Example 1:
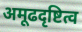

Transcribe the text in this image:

अमूढदृष्टित्व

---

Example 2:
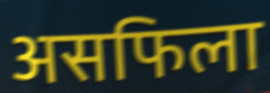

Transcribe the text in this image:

असफिला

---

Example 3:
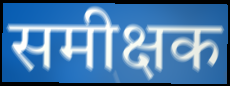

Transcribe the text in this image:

समीक्षक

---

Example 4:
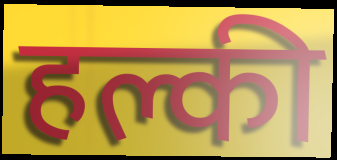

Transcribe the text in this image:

हल्‍की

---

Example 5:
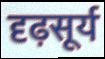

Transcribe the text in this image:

दृढ़सूर्य